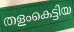
തളംകെട്ടിയ